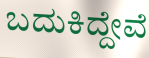
ಬದುಕಿದ್ದೇವೆ